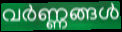
വർണ്ണങ്ങൾ